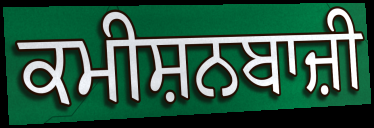
ਕਮੀਸ਼ਨਬਾਜ਼ੀ